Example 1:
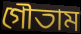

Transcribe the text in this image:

গৌতাম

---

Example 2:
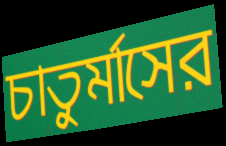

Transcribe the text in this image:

চাতুর্মাসের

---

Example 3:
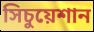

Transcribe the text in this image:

সিচুয়েশান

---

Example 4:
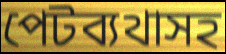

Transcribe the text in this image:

পেটব্যথাসহ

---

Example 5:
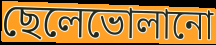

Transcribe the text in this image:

ছেলেভোলানো